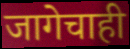
जागेचाही